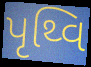
પૃથ્વિ